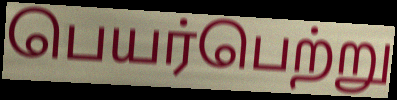
பெயர்பெற்று